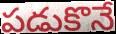
పడుకొనే